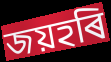
জয়হৰি